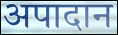
अपादान